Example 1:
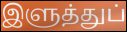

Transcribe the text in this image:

இளுத்துப்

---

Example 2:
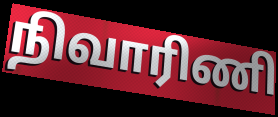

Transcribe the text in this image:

நிவாரிணி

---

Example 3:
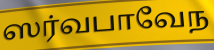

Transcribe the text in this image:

ஸர்வபாவேந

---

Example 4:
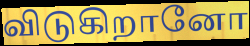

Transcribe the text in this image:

விடுகிறானோ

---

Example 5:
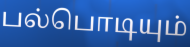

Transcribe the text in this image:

பல்பொடியும்